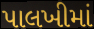
પાલખીમાં